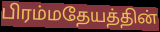
பிரம்மதேயத்தின்